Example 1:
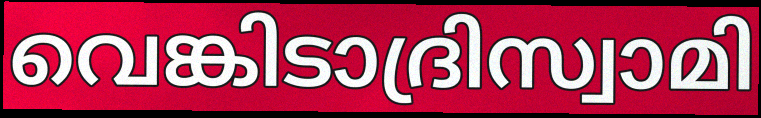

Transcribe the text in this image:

വെങ്കിടാദ്രിസ്വാമി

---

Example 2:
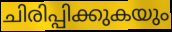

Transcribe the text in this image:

ചിരിപ്പിക്കുകയും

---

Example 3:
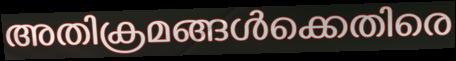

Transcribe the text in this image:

അതിക്രമങ്ങൾക്കെതിരെ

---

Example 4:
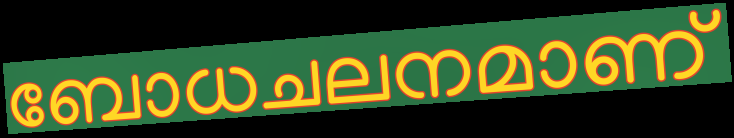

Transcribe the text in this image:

ബോധചലനമാണ്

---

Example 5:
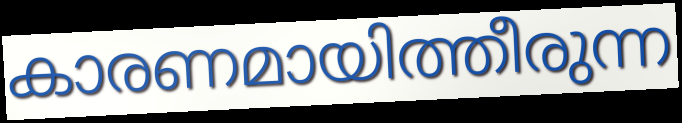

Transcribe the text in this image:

കാരണമായിത്തീരുന്ന